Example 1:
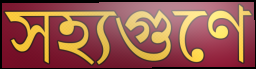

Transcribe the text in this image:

সহ্যগুণে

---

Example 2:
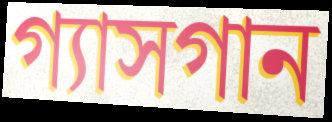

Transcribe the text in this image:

গ্যাসগান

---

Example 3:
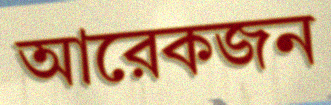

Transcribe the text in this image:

আরেকজন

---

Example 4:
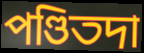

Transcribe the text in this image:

পণ্ডিতদা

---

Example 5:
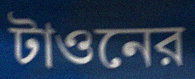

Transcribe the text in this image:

টাওনের